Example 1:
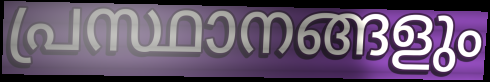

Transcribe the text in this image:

പ്രസ്ഥാനങ്ങളും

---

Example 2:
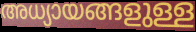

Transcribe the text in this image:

അധ്യായങ്ങളുള്ള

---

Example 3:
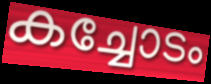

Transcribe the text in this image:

കച്ചോടം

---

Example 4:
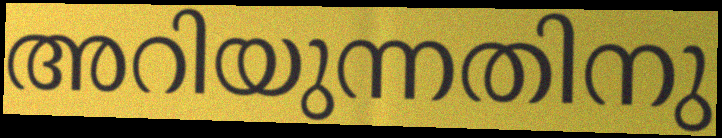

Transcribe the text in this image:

അറിയുന്നതിനു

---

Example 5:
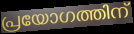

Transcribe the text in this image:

പ്രയോഗത്തിന്